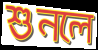
শুনলে